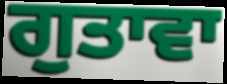
ਗੁਤਾਵਾ